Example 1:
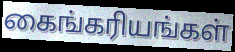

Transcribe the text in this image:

கைங்கரியங்கள்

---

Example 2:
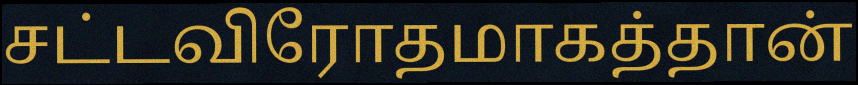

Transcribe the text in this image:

சட்டவிரோதமாகத்தான்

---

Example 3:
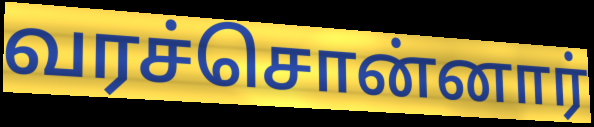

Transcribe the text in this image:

வரச்சொன்னார்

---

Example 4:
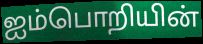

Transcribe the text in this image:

ஐம்பொறியின்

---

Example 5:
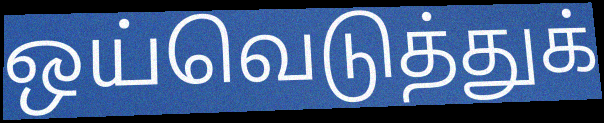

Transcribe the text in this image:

ஒய்வெடுத்துக்